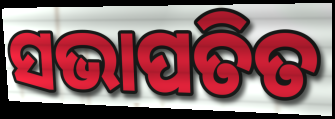
ସଭାପତିତ